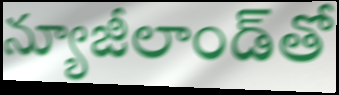
న్యూజీలాండ్‌తో